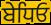
ਬੇਧਿਓ